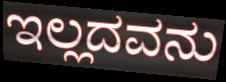
ಇಲ್ಲದವನು